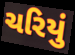
ચરિયું